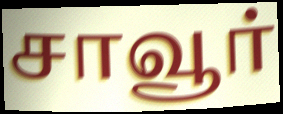
சாவூர்